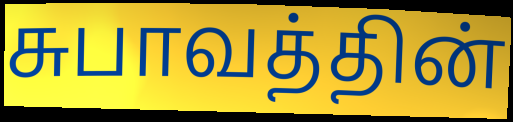
சுபாவத்தின்